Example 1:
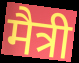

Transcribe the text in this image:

मैत्री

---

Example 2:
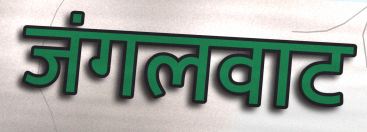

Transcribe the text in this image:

जंगलवाट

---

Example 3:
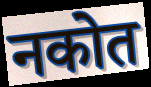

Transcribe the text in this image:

नकोत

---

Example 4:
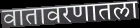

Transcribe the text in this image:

वातावरणातला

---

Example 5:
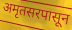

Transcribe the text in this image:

अमृतसरपासून